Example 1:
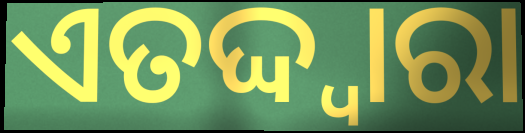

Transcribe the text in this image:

ଏତଦ୍ଦ୍ୱାରା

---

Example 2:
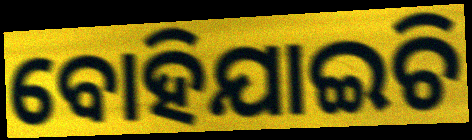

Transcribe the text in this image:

ବୋହିଯାଇଚି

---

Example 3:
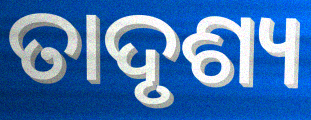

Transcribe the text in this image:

ତାଦୃଶ୍ୟ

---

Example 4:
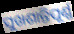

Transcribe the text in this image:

ସୁଖଶାନ୍ତିପୂର୍ଣ୍ଣ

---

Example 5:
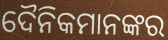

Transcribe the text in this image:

ଦୈନିକମାନଙ୍କର